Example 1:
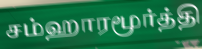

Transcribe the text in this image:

சம்ஹாரமூர்த்தி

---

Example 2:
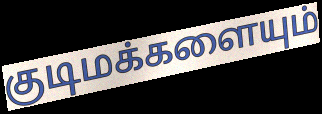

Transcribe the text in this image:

குடிமக்களையும்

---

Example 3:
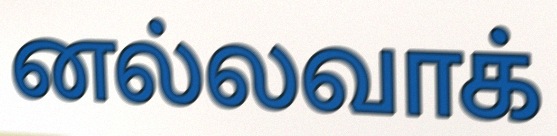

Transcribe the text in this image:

னல்லவாக்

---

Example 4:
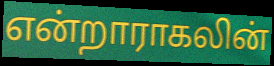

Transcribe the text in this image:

என்றாராகலின்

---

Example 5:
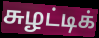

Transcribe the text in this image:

சுழட்டிக்